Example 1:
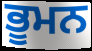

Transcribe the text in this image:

ਭੂਮਨ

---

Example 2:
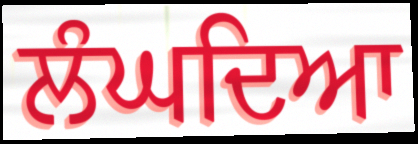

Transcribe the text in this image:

ਲੰਘਦਿਆ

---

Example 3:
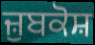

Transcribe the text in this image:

ਜ਼ੁਬਕੋਸ਼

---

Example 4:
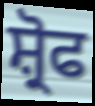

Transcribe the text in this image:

ਸ਼੍ਰੋਫ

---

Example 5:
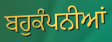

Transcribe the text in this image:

ਬਹੁਕੰਪਨੀਆਂ